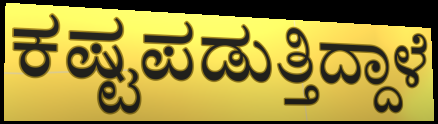
ಕಷ್ಟಪಡುತ್ತಿದ್ದಾಳೆ